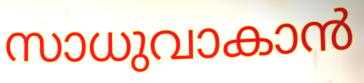
സാധുവാകാൻ